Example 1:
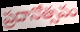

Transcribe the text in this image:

ప్రదానోత్సవం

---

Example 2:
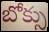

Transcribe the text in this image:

బోక్సు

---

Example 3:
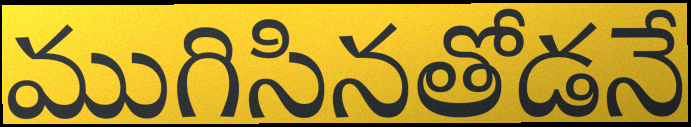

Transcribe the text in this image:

ముగిసినతోడనే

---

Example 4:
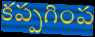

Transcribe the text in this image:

కప్పగింప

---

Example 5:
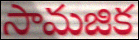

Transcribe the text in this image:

సామజిక